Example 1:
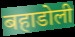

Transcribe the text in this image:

बहाडोली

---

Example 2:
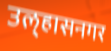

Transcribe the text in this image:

उल्हासनगर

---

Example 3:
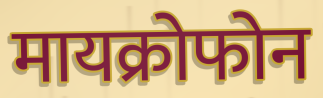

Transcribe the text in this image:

मायक्रोफोन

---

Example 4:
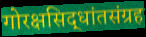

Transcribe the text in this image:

गोरक्षसिद्धांतसंग्रह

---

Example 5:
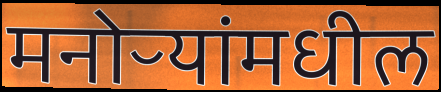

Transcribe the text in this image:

मनोऱ्यांमधील